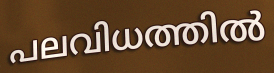
പലവിധത്തിൽ